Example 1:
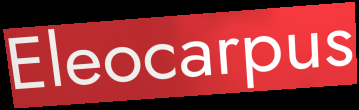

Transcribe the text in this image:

Eleocarpus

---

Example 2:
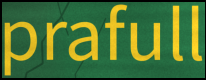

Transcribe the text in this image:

prafull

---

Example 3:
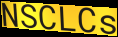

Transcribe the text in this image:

NSCLCs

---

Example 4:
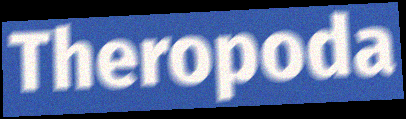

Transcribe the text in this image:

Theropoda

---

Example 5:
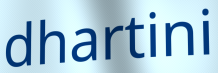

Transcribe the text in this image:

dhartini